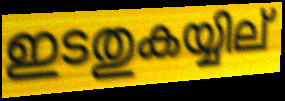
ഇടതുകയ്യില്